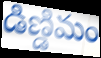
డిణ్డిమం